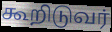
கூறிடுவர்